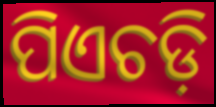
ପିଏଚଡ଼ି